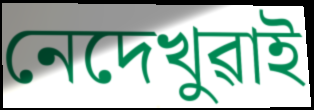
নেদেখুৱাই